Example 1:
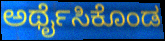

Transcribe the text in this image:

ಅರ್ಥೈಸಿಕೊಂಡ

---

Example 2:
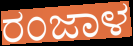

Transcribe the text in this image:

ರಂಜಾಳ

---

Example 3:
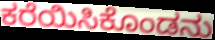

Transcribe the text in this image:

ಕರೆಯಿಸಿಕೊಂಡನು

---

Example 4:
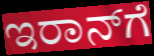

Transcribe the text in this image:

ಇರಾನ್‌ಗೆ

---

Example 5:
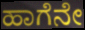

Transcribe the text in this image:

ಹಾಗೆನೇ